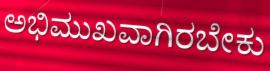
ಅಭಿಮುಖವಾಗಿರಬೇಕು